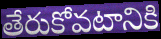
తేరుకోవటానికి